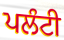
ਪਲੰਟੀ